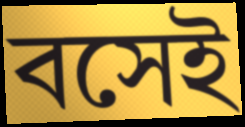
বসেই